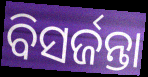
ବିସର୍ଜନ୍ତା